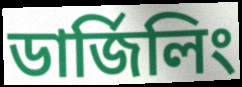
ডার্জিলিং